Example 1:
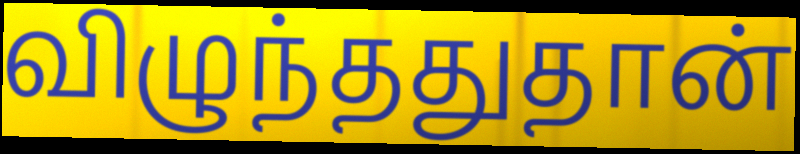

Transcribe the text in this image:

விழுந்ததுதான்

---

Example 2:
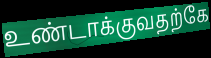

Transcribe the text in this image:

உண்டாக்குவதற்கே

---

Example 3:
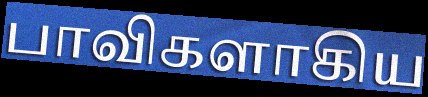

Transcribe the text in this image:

பாவிகளாகிய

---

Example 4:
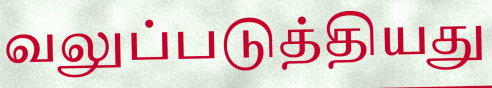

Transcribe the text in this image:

வலுப்படுத்தியது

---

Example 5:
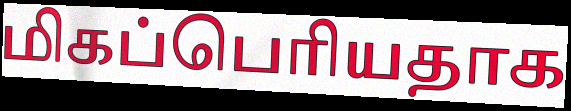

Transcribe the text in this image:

மிகப்பெரியதாக